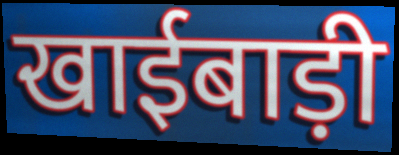
खाईबाड़ी